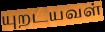
யுறடயவள்